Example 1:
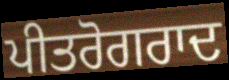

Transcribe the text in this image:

ਪੀਤਰੋਗਰਾਦ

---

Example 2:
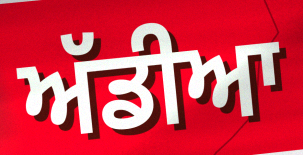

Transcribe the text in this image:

ਅੱਡੀਆ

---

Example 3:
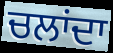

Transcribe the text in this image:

ਚਲਾਂਦਾ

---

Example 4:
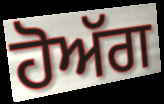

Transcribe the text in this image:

ਹੋਅੱਗ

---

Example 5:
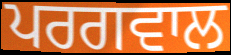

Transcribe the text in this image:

ਪਰਗਵਾਲ